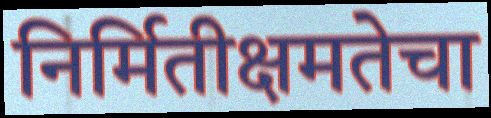
निर्मितीक्षमतेचा